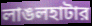
লাঙলহাটার